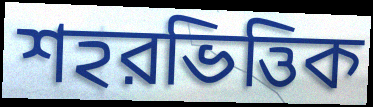
শহরভিত্তিক